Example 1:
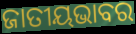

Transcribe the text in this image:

ଜାତୀୟଭାବର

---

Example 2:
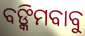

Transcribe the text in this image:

ବଙ୍କିମବାବୁ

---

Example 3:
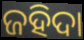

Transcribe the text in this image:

ଜହିଦା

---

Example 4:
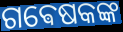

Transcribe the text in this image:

ଗଵେଷକଙ୍କ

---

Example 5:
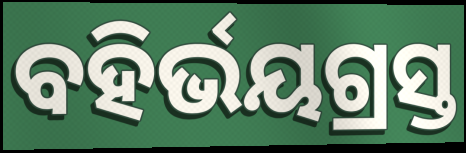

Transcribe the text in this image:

ବହିର୍ଭୟଗ୍ରସ୍ତ